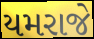
યમરાજે